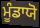
ਮੂੰਡਾਯੋ